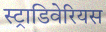
स्ट्राडिवेरियस